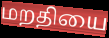
மறதியை